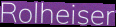
Rolheiser